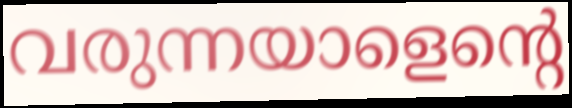
വരുന്നയാളെന്റെ